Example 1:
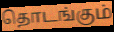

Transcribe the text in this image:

தொடங்கும்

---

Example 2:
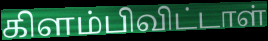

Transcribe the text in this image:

கிளம்பிவிட்டாள்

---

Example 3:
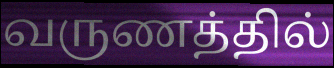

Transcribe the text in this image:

வருணத்தில்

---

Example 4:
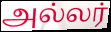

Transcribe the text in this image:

அல்லர்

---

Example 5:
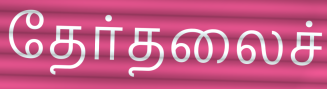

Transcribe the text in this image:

தேர்தலைச்